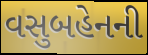
વસુબહેનની